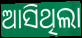
ଆସିଥିଲା